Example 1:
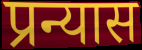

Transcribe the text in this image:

प्रन्यास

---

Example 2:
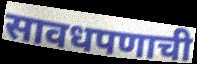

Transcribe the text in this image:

सावधपणाची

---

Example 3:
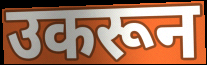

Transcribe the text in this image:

उकरून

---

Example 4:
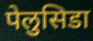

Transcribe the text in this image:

पेलुसिडा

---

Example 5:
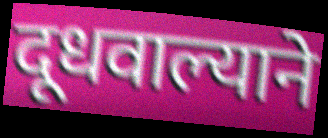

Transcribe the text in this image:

दूधवाल्याने